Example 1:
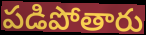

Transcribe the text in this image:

పడిపోతారు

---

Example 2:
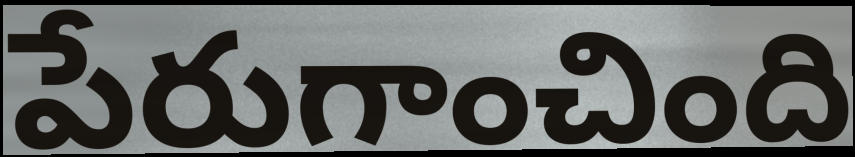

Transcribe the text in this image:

పేరుగాంచింది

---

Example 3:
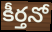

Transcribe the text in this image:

కీర్తనో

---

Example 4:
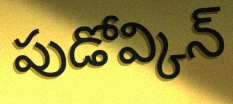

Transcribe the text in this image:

పుడోవ్కిన్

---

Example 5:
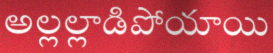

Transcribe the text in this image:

అల్లల్లాడిపోయాయి